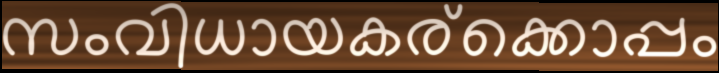
സംവിധായകര്ക്കൊപ്പം